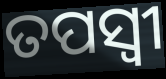
ତପସ୍ବୀ